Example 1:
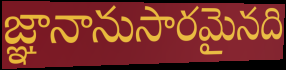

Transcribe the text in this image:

జ్ఞానానుసారమైనది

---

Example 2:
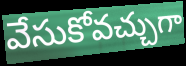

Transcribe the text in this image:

వేసుకోవచ్చుగా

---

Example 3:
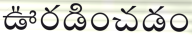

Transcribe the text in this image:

ఊరడించడం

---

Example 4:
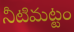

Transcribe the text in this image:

నీటిమట్టం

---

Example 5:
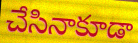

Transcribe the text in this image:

చేసినాకూడా